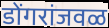
डोंगरांजवळ